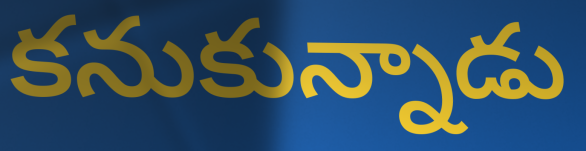
కనుకున్నాడు